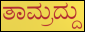
ತಾಮ್ರದ್ದು